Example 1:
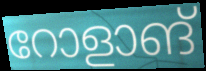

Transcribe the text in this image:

റോളാങ്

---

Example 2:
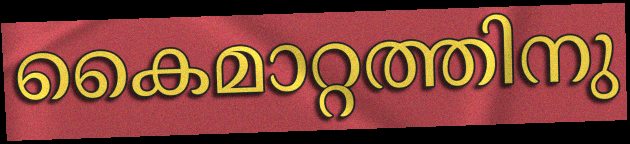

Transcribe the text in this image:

കൈമാറ്റത്തിനു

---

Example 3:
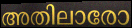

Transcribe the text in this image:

അതിലാരോ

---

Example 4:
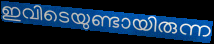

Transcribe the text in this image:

ഇവിടെയുണ്ടായിരുന്ന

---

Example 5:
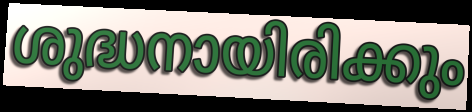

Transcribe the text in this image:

ശുദ്ധനായിരിക്കും